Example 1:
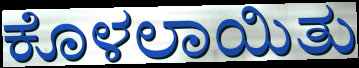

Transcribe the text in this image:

ಕೊಳಲಾಯಿತು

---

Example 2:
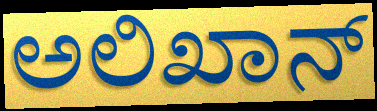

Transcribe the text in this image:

ಅಲಿಖಾನ್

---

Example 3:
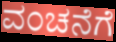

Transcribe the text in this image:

ವಂಚನೆಗೆ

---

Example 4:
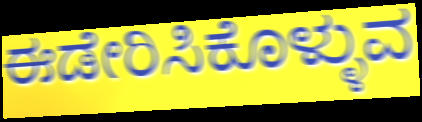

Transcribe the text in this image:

ಈಡೇರಿಸಿಕೊಳ್ಳುವ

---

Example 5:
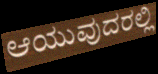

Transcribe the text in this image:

ಆಯುವುದರಲ್ಲಿ